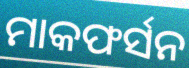
ମାକଫର୍ସନ